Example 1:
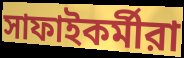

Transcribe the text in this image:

সাফাইকর্মীরা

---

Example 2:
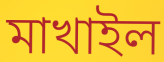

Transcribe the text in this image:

মাখাইল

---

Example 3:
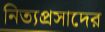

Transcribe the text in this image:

নিত্যপ্রসাদের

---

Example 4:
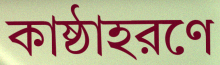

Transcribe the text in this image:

কাষ্ঠাহরণে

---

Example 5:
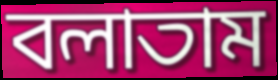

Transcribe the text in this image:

বলাতাম